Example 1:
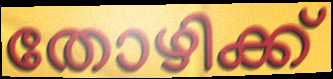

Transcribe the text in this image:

തോഴിക്ക്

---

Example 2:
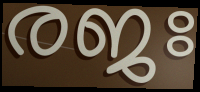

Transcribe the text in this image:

രജഃ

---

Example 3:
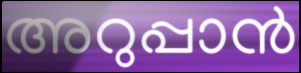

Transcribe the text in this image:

അറുപ്പാൻ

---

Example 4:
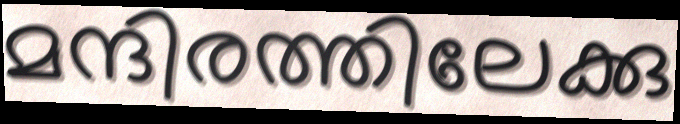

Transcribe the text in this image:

മന്ദിരത്തിലേക്കു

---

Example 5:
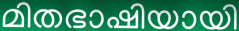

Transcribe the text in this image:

മിതഭാഷിയായി